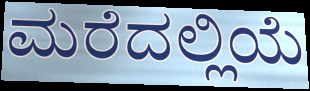
ಮರೆದಲ್ಲಿಯೆ